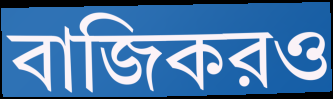
বাজিকরও